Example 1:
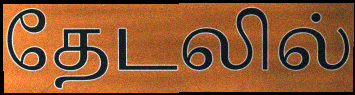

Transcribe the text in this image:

தேடலில்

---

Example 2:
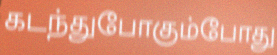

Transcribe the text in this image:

கடந்துபோகும்போது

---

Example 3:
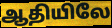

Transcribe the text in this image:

ஆதியிலே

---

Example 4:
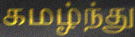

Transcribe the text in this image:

கமழ்ந்து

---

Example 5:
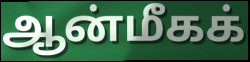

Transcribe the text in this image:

ஆன்மீகக்